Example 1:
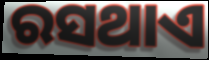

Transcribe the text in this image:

ରସଥାଏ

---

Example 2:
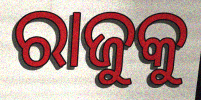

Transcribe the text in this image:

ରାଜୁକୁ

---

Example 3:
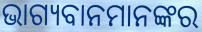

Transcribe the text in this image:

ଭାଗ୍ୟବାନମାନଙ୍କର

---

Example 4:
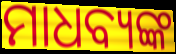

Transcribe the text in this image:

ମାଧବ୍ୟଙ୍କ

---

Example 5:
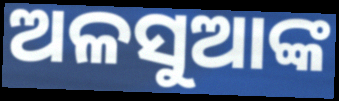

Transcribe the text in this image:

ଅଳସୁଆଙ୍କ